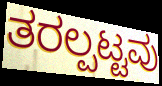
ತರಲ್ಪಟ್ಟವು